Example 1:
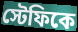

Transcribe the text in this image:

স্টেফিকে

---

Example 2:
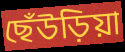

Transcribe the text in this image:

ছেঁউড়িয়া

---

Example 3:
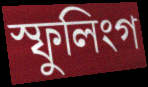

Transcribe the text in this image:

স্ফুলিংগ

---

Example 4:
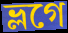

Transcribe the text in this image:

ভ্লগে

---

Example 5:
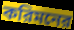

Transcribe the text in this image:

করিমনের